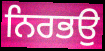
ਨਿਰਭਉ